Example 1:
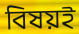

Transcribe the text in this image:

বিষয়ই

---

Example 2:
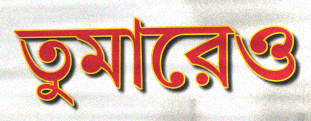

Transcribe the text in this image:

তুমারেও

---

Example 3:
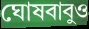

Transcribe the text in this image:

ঘোষবাবুও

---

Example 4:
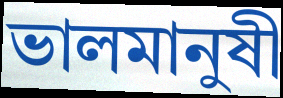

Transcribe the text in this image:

ভালমানুষী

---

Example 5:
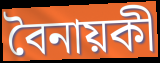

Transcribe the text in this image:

বৈনায়কী